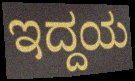
ಇದ್ದಯ